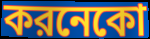
করনেকো